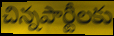
చిన్నపార్టీలకు